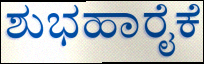
ಶುಭಹಾರೈಕೆ